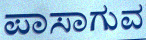
ಪಾಸಾಗುವ